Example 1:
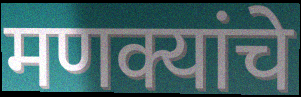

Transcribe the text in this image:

मणक्यांचे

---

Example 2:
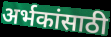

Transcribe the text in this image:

अर्भकांसाठी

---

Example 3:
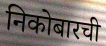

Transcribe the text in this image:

निकोबारची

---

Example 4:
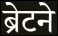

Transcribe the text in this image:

ब्रेटने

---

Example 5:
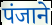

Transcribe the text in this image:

पंजाने